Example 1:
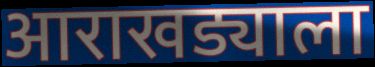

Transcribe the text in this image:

आराखड्याला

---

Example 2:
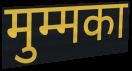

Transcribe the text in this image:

मुम्मका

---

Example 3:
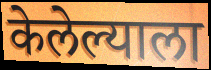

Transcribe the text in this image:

केलेल्याला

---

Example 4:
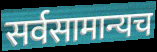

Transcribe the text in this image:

सर्वसामान्यच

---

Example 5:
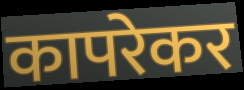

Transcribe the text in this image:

कापरेकर